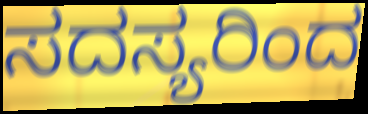
ಸದಸ್ಯರಿಂದ